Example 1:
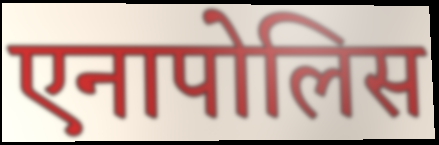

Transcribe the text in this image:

एनापोलिस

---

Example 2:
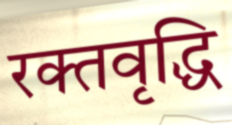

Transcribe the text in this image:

रक्तवृद्धि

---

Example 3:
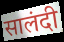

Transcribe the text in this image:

सालंदी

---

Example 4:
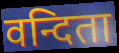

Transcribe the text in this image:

वन्दिता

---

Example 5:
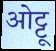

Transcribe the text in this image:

ओट्टू